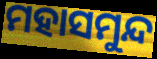
ମହାସମୁନ୍ଦ